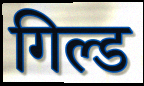
गिल्ड